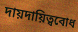
দায়দায়িত্ববোধ